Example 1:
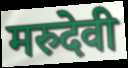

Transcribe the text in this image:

मरुदेवी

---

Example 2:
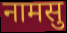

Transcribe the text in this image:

नामसु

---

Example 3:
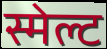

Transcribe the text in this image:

स्मेल्ट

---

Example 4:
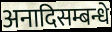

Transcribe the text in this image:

अनादिसम्बन्धे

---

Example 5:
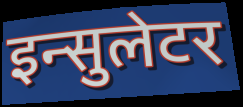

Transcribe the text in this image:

इन्सुलेटर